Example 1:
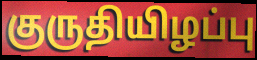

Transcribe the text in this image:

குருதியிழப்பு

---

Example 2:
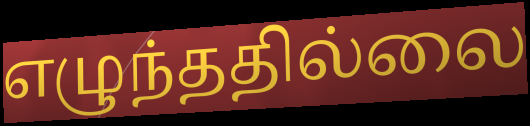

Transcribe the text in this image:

எழுந்ததில்லை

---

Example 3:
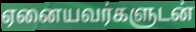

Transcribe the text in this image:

ஏனையவர்களுடன்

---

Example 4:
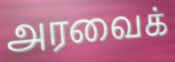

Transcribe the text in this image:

அரவைக்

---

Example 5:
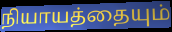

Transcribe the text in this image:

நியாயத்தையும்